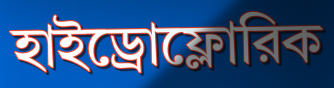
হাইড্রোফ্লোরিক